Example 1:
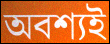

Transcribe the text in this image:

অবশ্যই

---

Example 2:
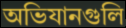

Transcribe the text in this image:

অভিযানগুলি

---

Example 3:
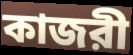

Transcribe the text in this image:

কাজরী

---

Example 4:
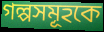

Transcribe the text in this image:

গল্পসমূহকে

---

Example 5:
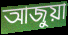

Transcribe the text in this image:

আজুয়া